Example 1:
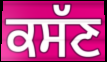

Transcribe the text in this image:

ਕਸੱਣ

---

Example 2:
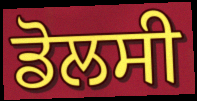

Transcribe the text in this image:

ਡੋਲਸੀ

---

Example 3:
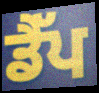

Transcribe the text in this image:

ਡੈੱਪ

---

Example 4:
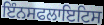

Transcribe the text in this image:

ਇੰਨਸਫਲਾਇਟਿਸ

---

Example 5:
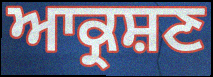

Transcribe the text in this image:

ਆਕ੍ਰਸ਼ਣ